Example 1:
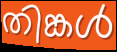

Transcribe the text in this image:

തിങ്കൾ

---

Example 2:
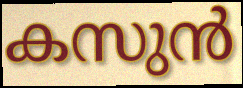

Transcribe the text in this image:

കസുൻ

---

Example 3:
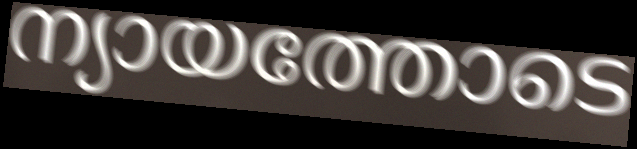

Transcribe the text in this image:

ന്യായത്തോടെ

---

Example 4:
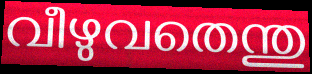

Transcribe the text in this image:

വീഴുവതെന്തു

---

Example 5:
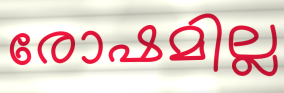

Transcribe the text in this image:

രോഷമില്ല